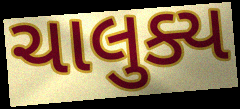
ચાલુક્ય